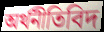
অৰ্থনীতিবিদ